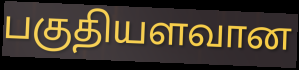
பகுதியளவான